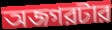
অজগরটার